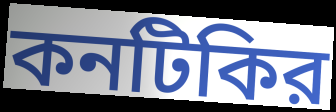
কনটিকির